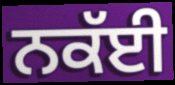
ਨਕੱਈ